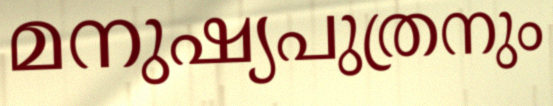
മനുഷ്യപുത്രനും